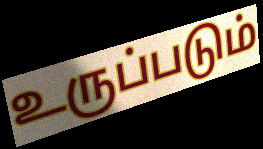
உருப்படும்